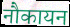
नौकायन